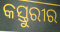
କସ୍ତୁରୀର